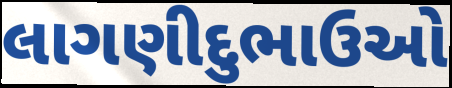
લાગણીદુભાઉઓ